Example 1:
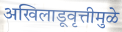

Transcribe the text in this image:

अखिलाडूवृत्तीमुळे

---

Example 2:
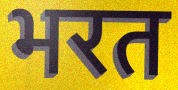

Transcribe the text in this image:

भरत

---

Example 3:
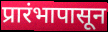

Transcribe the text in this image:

प्रारंभापासून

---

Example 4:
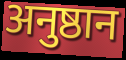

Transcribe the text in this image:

अनुष्ठान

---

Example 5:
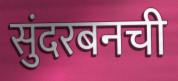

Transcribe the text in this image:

सुंदरबनची